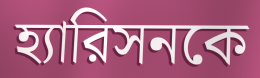
হ্যারিসনকে